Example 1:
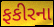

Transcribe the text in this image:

ફકીરના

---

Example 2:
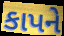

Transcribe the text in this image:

કાપને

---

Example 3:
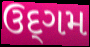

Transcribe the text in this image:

ઉદ્‌ગમ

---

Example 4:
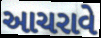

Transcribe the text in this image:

આચરાવે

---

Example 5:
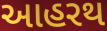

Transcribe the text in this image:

આહરથ